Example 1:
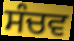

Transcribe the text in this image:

ਸੰਚਵ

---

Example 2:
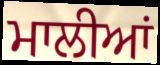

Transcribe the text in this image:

ਮਾਲੀਆਂ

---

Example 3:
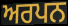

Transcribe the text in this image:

ਅਰਪਨ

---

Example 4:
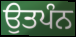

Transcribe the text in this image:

ਉਤਪੰਨ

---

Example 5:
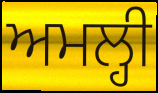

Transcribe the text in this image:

ਅਮਲ੍ਹੀ